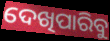
ଦେଖିପାରିବୁ